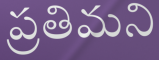
ప్రతిమని